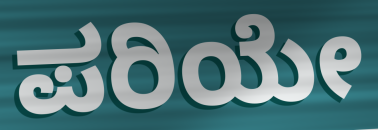
ಪರಿಯೇ